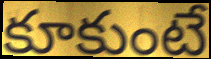
కూకుంటే